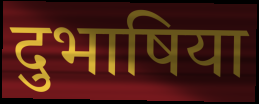
दुभाषिया